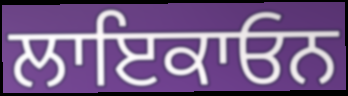
ਲਾਇਕਾਓਨ